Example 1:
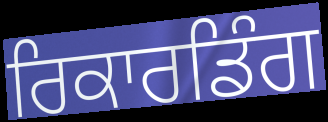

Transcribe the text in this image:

ਰਿਕਾਰਡਿੰਗ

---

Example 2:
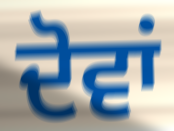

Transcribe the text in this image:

ਦੋਵਾਂ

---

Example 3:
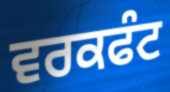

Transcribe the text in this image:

ਵਰਕਫੰਟ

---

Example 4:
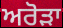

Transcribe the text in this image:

ਅਰੋੜਾ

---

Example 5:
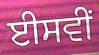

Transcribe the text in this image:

ਈਸਵੀਂ